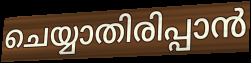
ചെയ്യാതിരിപ്പാൻ